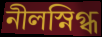
নীলস্নিগ্ধ